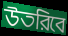
উতরিবে